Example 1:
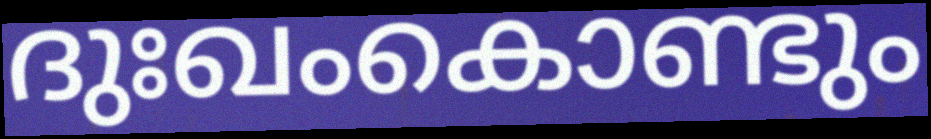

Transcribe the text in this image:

ദുഃഖംകൊണ്ടും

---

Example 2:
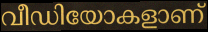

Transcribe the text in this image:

വീഡിയോകളാണ്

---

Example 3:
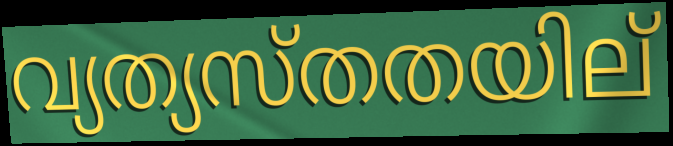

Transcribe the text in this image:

വ്യത്യസ്തതയില്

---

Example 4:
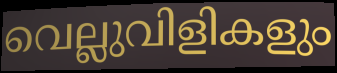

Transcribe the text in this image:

വെല്ലുവിളികളും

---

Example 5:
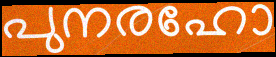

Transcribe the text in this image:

പുനരഹോ